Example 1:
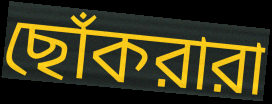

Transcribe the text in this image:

ছোঁকরারা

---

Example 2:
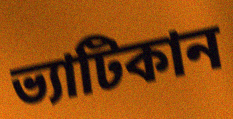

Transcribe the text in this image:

ভ্যাটিকান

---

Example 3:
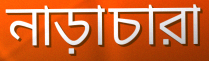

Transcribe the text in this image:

নাড়াচারা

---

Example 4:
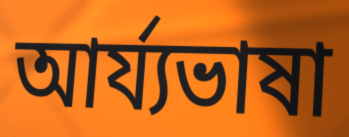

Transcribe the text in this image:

আর্য্যভাষা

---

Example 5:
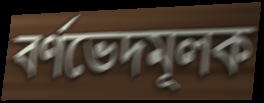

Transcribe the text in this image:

বর্ণভেদমূলক